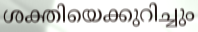
ശക്തിയെക്കുറിച്ചും